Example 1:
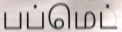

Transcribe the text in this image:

பப்மெட்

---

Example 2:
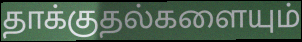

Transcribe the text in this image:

தாக்குதல்களையும்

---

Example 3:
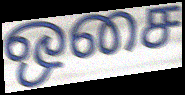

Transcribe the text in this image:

ஒசை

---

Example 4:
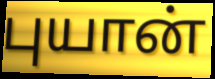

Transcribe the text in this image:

புயான்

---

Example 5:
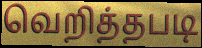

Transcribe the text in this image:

வெறித்தபடி